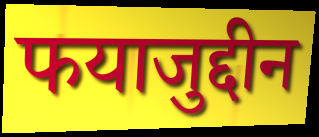
फयाजुद्दीन